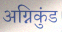
अग्निकुंड